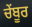
ਚੇਂਬੂਰ